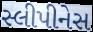
સ્લીપીનેસ